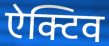
ऐक्टिव